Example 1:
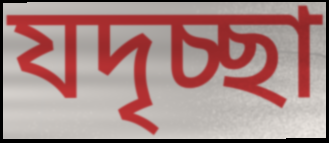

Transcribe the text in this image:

যদৃচ্ছা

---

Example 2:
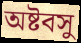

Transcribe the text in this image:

অষ্টবসু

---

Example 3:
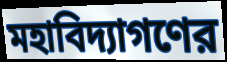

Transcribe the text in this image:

মহাবিদ্যাগণের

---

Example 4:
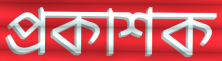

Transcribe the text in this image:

প্রকাশক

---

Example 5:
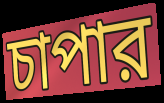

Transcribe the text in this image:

চাপার